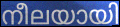
നീലയായി